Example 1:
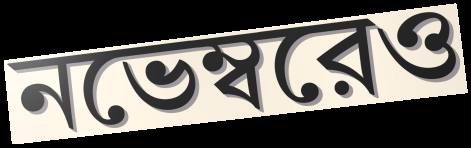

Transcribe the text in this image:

নভেম্বরেও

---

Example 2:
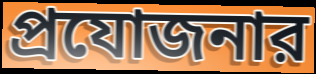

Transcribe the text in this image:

প্রযোজনার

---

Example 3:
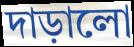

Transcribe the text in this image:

দাড়ালো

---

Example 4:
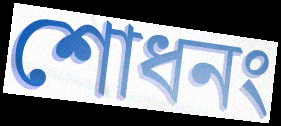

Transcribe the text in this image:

শোধনং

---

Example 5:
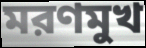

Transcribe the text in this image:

মরণমুখ